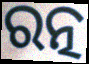
ରତ୍ନ